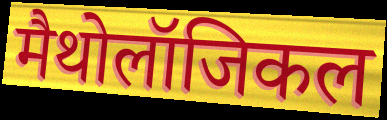
मैथोलॉजिकल